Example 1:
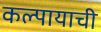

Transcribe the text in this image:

कल्पायाची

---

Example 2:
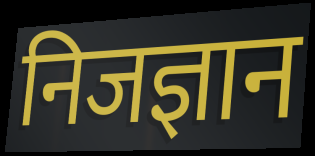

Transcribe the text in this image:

निजज्ञान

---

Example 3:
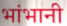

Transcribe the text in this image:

भांभानी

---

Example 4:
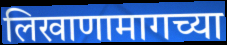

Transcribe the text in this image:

लिखाणामागच्या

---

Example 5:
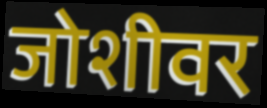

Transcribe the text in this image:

जोशीवर